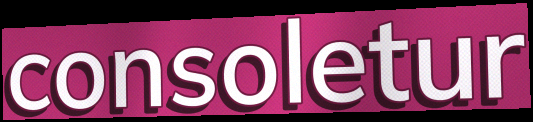
consoletur